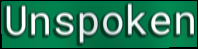
Unspoken